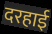
दरहाई